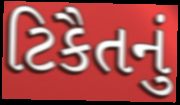
ટિકૈતનું